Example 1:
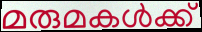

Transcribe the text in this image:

മരുമകൾക്ക്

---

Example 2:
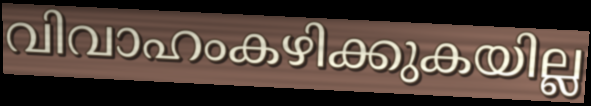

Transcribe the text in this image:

വിവാഹംകഴിക്കുകയില്ല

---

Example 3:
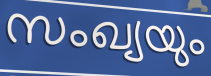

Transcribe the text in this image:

സംഖ്യയും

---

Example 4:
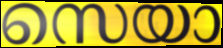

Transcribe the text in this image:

സെയാ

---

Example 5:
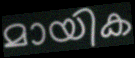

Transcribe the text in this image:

മായിക